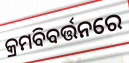
କ୍ରମବିବର୍ତ୍ତନରେ